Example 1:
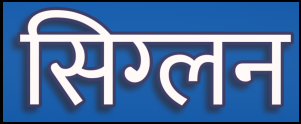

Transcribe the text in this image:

सिग्‍लन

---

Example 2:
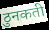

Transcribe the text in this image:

ठुनकती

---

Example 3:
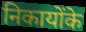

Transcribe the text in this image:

निकायोंके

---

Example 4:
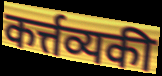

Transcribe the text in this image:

कर्त्तव्यकी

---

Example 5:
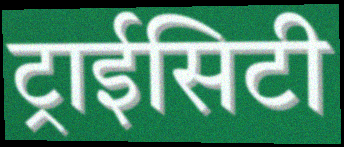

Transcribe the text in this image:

ट्राईसिटी